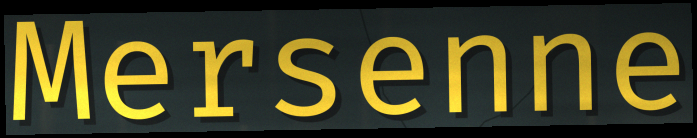
Mersenne